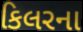
કિલરના